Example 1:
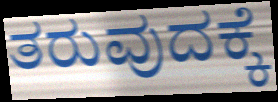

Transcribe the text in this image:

ತರುವುದಕ್ಕೆ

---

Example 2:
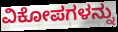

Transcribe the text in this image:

ವಿಕೋಪಗಳನ್ನು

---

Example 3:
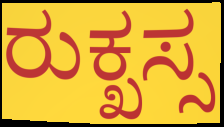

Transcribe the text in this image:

ರುಕ್ಖಸ್ಸ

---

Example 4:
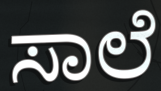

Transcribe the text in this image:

ಸಾಲೆ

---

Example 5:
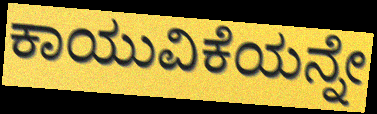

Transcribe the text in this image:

ಕಾಯುವಿಕೆಯನ್ನೇ